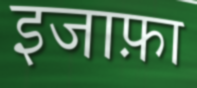
इजाफ़ा